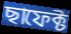
ছাফেক্ট